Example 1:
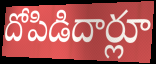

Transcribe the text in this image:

దోపిడిదార్లూ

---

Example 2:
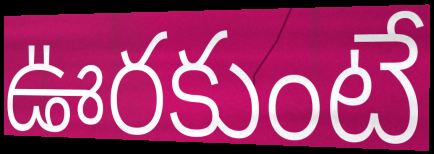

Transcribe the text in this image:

ఊరకుంటే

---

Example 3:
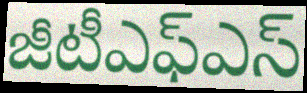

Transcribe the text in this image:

జీటీఎఫ్ఎస్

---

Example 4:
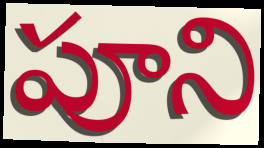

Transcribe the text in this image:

పూని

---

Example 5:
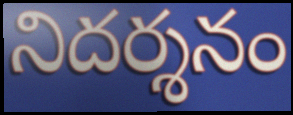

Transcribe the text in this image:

నిదర్శనం